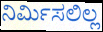
ನಿರ್ಮಿಸಲಿಲ್ಲ